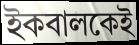
ইকবালকেই